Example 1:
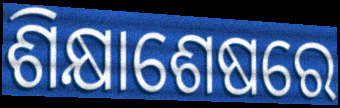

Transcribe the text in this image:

ଶିକ୍ଷାଶେଷରେ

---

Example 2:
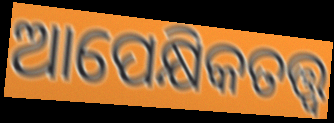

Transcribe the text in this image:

ଆପେକ୍ଷିକତତ୍ତ୍ୱ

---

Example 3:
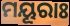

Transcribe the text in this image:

ମୟୂରାଃ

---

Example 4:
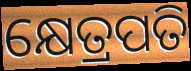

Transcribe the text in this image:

କ୍ଷେତ୍ରପତି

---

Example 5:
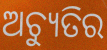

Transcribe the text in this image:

ଅଚ୍ୟୁତିର